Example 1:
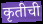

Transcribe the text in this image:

कृतीची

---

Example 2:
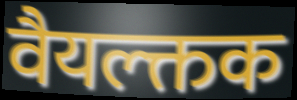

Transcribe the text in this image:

वैयल्क्तक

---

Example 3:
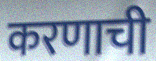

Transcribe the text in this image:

करणाची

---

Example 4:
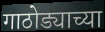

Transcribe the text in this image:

गाठोड्याच्या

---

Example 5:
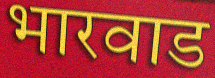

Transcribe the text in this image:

भारवाड